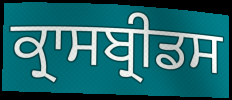
ਕ੍ਰਾਸਬ੍ਰੀਡਸ